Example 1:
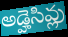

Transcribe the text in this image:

అడ్హెసివ్లు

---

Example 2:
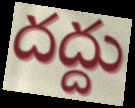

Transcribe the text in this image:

దద్దు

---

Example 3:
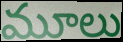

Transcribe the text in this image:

మూలు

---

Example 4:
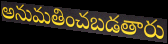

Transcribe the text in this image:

అనుమతించబడతారు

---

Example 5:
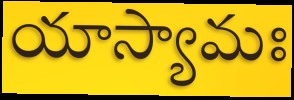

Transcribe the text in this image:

యాస్యామః